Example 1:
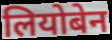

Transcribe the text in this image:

लियोबेन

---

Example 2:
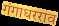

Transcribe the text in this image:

गंगाधरराव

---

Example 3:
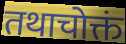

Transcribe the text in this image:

तथाचोक्तं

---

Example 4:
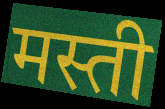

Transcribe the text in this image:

मस्‍ती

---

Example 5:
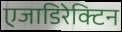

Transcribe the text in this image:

एजाडिरेक्टिन